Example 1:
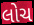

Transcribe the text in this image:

લોચ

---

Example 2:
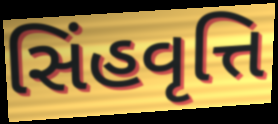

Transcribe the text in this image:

સિંહવૃત્તિ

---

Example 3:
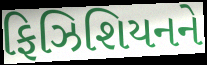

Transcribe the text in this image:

ફિઝિશિયનને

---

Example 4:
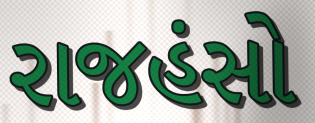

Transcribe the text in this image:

રાજહંસો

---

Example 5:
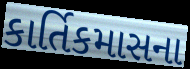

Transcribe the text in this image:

કાર્તિકમાસના